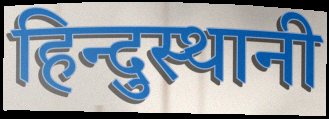
हिन्दुस्थानी